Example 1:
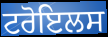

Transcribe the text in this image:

ਟਰੋਇਲਸ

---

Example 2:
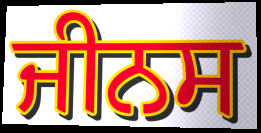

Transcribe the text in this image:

ਜੀਨਸ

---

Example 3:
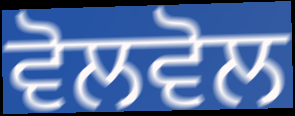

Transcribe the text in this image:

ਵੋਲਵੋਲ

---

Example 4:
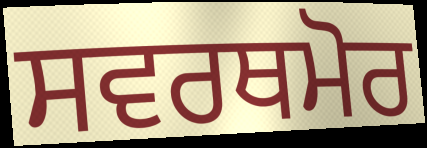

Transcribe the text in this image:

ਸਵਰਥਮੋਰ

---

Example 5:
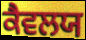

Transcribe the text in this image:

ਕੈਵਲਯ